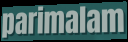
parimalam